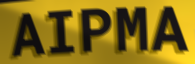
AIPMA